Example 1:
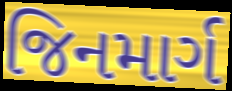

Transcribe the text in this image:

જિનમાર્ગ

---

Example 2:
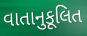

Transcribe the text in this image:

વાતાનુકૂલિત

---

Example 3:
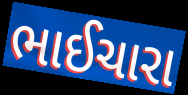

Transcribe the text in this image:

ભાઈચારા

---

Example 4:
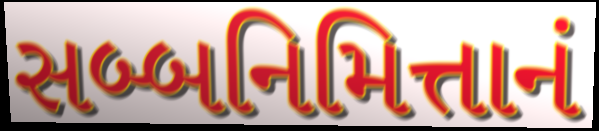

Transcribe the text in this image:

સબ્બનિમિત્તાનં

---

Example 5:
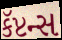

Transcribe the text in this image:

કૅપ્ટન્સ